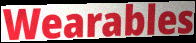
Wearables